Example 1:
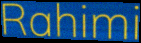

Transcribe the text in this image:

Rahimi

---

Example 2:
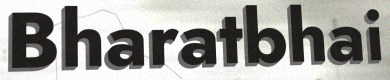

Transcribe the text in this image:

Bharatbhai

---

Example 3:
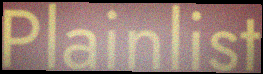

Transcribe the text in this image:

Plainlist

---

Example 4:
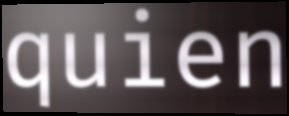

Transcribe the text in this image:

quien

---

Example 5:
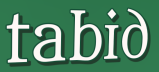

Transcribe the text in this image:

tabid